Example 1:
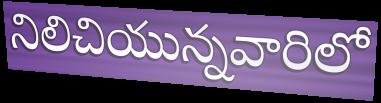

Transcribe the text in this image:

నిలిచియున్నవారిలో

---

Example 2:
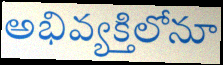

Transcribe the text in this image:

అభివ్యక్తిలోనూ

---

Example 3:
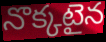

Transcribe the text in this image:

నొక్కటైన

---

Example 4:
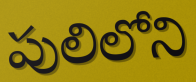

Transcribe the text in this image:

పులిలోని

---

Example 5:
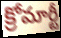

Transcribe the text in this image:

క్రోమార్టీ